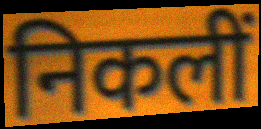
निकलीं